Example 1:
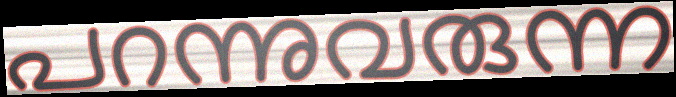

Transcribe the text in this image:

പറന്നുവരുന്ന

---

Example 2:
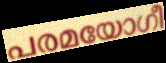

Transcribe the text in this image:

പരമയോഗീ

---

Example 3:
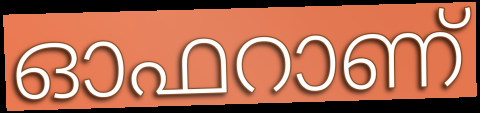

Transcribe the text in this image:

ഓഫറാണ്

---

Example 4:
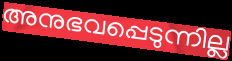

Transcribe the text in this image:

അനുഭവപ്പെടുന്നില്ല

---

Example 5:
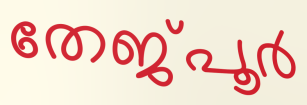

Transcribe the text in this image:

തേജ്പൂർ